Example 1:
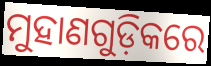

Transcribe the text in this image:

ମୁହାଣଗୁଡ଼ିକରେ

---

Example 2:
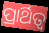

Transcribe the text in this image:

ପ୍ରାର୍ଥିତ୍ୱ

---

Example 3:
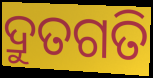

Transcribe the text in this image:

ଦ୍ରୁତଗତି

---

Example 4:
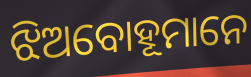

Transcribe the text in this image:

ଝିଅବୋହୂମାନେ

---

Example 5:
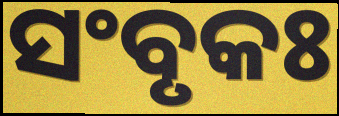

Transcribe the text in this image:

ସଂବୃକଃ